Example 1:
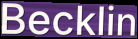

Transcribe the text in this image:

Becklin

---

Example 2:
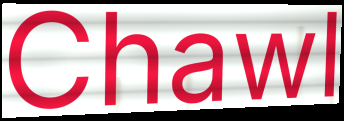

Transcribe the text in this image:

Chawl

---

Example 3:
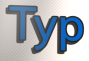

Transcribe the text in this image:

Typ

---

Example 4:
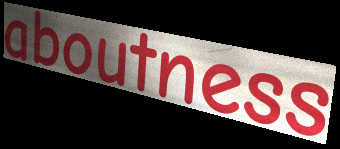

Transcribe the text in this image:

aboutness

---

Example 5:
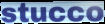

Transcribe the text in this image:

stucco